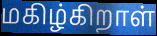
மகிழ்கிறாள்